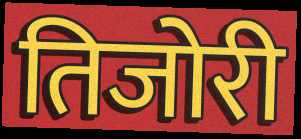
तिजोरी